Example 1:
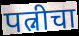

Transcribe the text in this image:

पत्नीचा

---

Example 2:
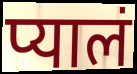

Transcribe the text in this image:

प्यालं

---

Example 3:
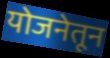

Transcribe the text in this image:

योजनेतून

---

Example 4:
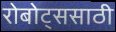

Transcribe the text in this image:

रोबोट्ससाठी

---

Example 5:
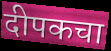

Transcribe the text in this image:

दीपकचा